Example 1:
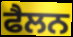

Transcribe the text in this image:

ਫੈਲਨ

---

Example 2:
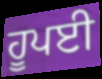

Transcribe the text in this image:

ਹੂਪਈ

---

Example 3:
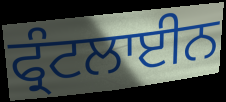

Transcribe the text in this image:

ਫ੍ਰੰਟਲਾਈਨ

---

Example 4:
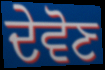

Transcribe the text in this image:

ਦੇਵੋਣ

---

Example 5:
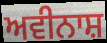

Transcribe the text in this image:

ਅਵੀਨਾਸ਼